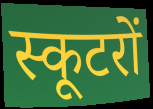
स्कूटरों